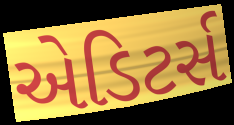
એડિટર્સ